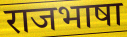
राजभाषा